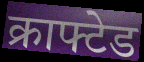
क्राफ्टेड